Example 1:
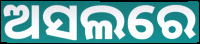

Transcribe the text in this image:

ଅସଲରେ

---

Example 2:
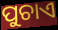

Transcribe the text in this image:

ପୁଚାଏ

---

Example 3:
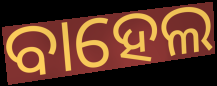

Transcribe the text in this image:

ବାହେଲ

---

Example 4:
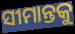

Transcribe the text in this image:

ସୀମାନ୍ତକୁ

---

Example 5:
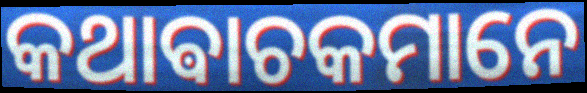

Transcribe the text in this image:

କଥାଵାଚକମାନେ